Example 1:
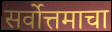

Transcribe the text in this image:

सर्वोत्तमाचा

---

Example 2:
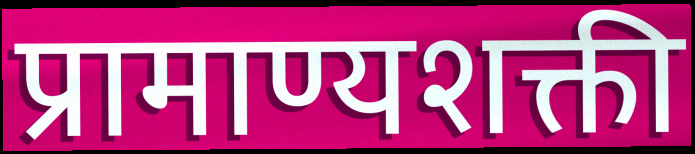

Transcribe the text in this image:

प्रामाण्यशक्ती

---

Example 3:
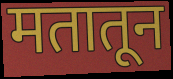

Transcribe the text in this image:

मतातून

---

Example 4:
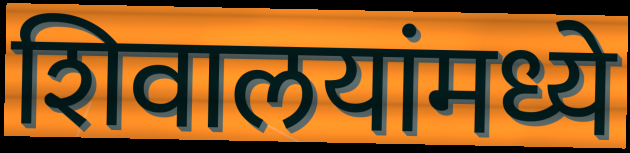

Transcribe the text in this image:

शिवालयांमध्ये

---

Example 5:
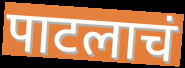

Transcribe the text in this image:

पाटलाचं